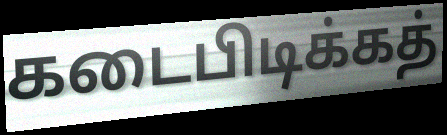
கடைபிடிக்கத்